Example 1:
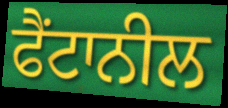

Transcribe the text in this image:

ਫੈਂਟਾਨੀਲ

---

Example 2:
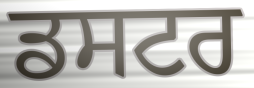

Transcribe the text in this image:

ਡਸਟਰ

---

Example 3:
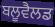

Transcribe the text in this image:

ਬਲੂਵੈਲਡ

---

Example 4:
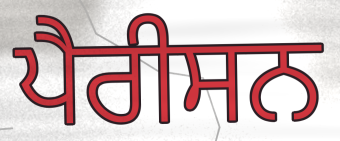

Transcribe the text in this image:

ਪੈਰੀਸਨ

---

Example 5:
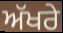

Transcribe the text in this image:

ਅੱਖਰੇ